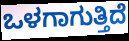
ಒಳಗಾಗುತ್ತಿದೆ